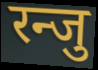
रन्जु